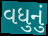
વધુનું